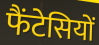
फैंटेसियों